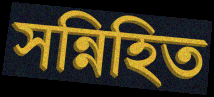
সন্নিহিত